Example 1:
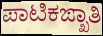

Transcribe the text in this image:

ಪಾಟಿಕಙ್ಖಾತಿ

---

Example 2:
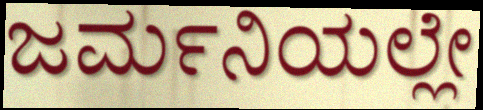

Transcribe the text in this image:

ಜರ್ಮನಿಯಲ್ಲೇ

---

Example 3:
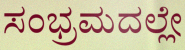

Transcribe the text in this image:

ಸಂಭ್ರಮದಲ್ಲೇ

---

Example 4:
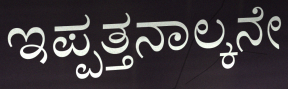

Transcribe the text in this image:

ಇಪ್ಪತ್ತನಾಲ್ಕನೇ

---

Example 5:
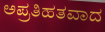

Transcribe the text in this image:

ಅಪ್ರತಿಹತವಾದ